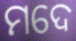
ମଦେ